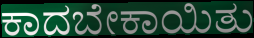
ಕಾದಬೇಕಾಯಿತು